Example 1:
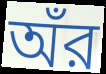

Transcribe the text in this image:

অঁর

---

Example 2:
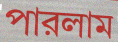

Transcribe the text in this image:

পারলাম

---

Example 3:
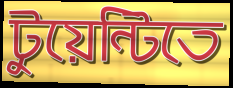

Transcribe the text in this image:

টুয়েন্টিতে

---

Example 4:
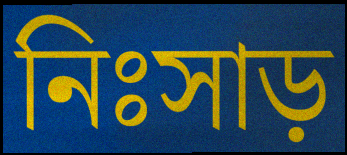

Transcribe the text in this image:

নিঃসাড়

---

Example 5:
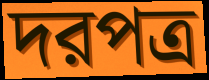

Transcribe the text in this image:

দরপত্র